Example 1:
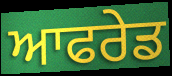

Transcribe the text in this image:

ਆਫਰੇਡ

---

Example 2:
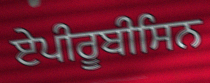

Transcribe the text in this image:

ਏਪੀਰੂਬੀਸਿਨ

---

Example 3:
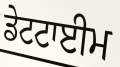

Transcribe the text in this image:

ਡੇਟਟਾਈਮ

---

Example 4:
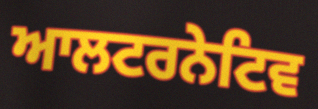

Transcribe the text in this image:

ਆਲਟਰਨੇਟਿਵ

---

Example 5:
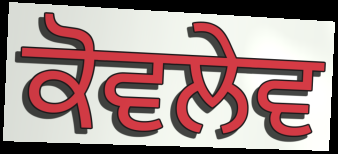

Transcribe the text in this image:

ਕੋਵਲੇਵ